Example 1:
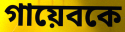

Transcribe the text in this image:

গায়েবকে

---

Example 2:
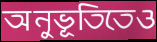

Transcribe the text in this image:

অনুভূতিতেও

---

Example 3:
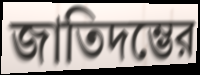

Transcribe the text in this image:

জাতিদম্ভের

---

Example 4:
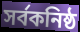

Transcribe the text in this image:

সর্বকনিষ্ঠ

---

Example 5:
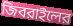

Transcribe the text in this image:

জিবরাইলের